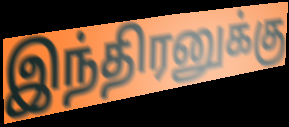
இந்திரனுக்கு